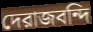
দেরাজবন্দি